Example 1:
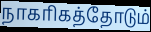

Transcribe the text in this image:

நாகரிகத்தோடும்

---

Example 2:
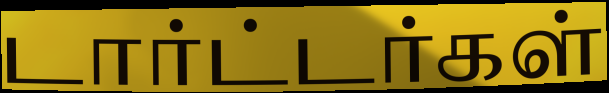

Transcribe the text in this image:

டார்ட்டர்கள்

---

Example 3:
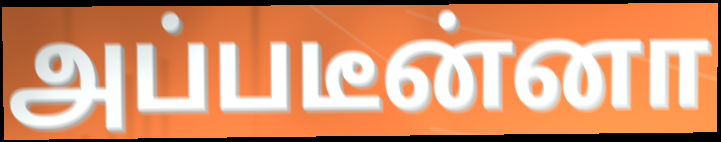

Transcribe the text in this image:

அப்படீன்னா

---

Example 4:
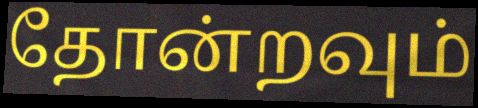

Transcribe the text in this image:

தோன்றவும்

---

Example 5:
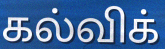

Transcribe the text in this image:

கல்விக்